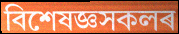
বিশেষজ্ঞসকলৰ